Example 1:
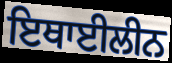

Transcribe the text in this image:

ਇਥਾਈਲੀਨ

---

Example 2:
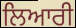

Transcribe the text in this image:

ਲਿਆਰੀ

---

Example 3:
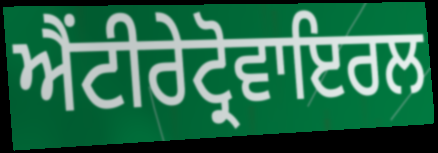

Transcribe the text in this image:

ਐਂਟੀਰੇਟ੍ਰੋਵਾਇਰਲ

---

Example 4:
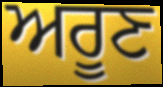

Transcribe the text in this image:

ਅਰੂਣ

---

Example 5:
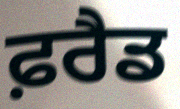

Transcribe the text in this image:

ਫ਼ਰੈਡ